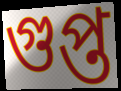
গুপ্ত